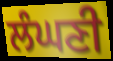
ਲੰਘਣੀ